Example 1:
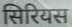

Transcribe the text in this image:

सिरियस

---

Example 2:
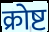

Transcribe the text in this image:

क्रोष्ट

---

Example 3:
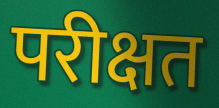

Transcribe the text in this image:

परीक्षत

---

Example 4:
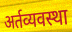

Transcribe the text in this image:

अर्तव्यवस्था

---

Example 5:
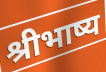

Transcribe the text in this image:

श्रीभाष्य